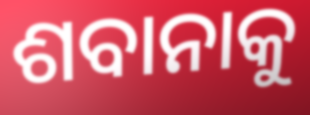
ଶବାନାକୁ